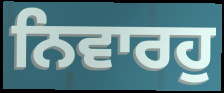
ਨਿਵਾਰਹੁ